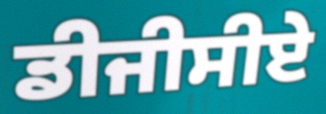
ਡੀਜੀਸੀਏ